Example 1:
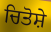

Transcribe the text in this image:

ਚਿਤੋਸ਼ੇ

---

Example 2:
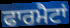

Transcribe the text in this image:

ਫਾਰਮੈਟਾਂ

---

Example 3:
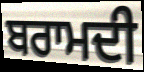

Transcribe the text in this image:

ਬਰਾਮਦੀ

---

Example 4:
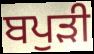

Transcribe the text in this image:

ਬਪੁੜੀ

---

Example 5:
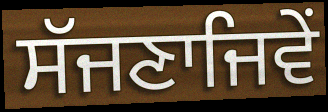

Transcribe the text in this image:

ਸੱਜਣਾਜਿਵੇਂ